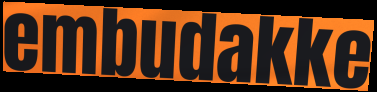
embudakke